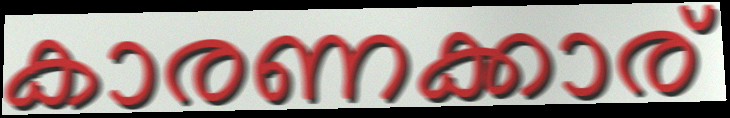
കാരണക്കാര്